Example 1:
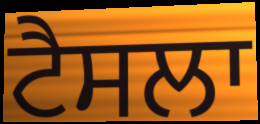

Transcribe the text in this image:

ਟੈਸਲਾ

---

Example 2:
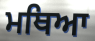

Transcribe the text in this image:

ਮਥਿਆ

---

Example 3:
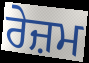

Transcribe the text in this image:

ਰੇਜ਼ਮ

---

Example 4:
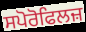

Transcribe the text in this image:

ਸਪੋਰੋਫਿਲਜ਼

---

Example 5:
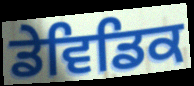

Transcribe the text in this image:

ਡੇਵਿਡਿਕ